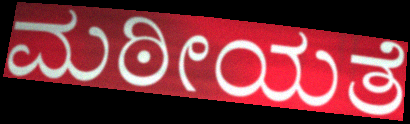
ಮಠೀಯತೆ